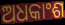
ଅଧକାଂଶ